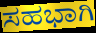
ಸಹಭಾಗಿ